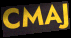
CMAJ